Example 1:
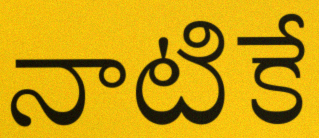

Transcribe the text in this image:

నాటికే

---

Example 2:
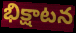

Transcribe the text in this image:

భిక్షాటన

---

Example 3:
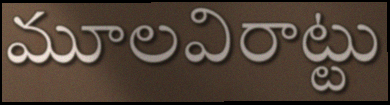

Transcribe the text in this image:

మూలవిరాట్టు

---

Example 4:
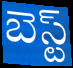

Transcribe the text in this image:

బెస్ట్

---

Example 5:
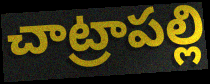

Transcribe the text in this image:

చాట్రాపల్లి